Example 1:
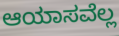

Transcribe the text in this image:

ಆಯಾಸವೆಲ್ಲ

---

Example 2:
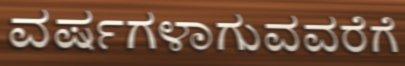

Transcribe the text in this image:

ವರ್ಷಗಳಾಗುವವರೆಗೆ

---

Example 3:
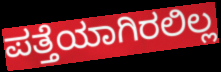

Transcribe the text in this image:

ಪತ್ತೆಯಾಗಿರಲಿಲ್ಲ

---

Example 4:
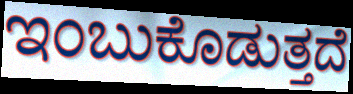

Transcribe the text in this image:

ಇಂಬುಕೊಡುತ್ತದೆ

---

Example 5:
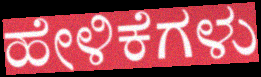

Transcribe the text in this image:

ಹೇಳಿಕೆಗಳು